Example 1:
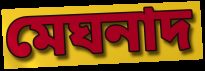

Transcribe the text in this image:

মেঘনাদ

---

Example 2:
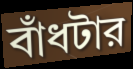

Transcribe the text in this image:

বাঁধটার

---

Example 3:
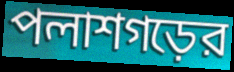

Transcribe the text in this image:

পলাশগড়ের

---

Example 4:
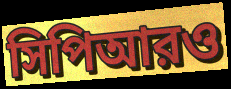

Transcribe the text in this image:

সিপিআরও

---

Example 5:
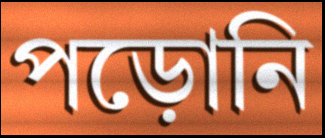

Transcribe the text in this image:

পড়োনি